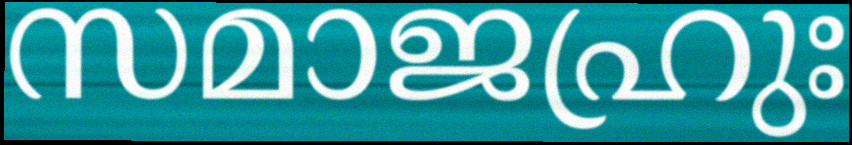
സമാജഹ്രുഃ